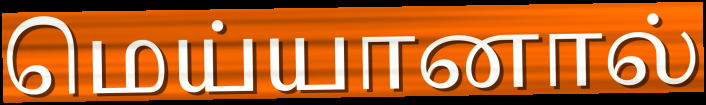
மெய்யானால்